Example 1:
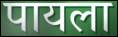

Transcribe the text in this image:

पायला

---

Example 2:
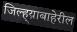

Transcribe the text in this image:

जिल्ह्य़ाबाहेरील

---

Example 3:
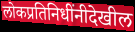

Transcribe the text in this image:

लोकप्रतिनिधींनीदेखील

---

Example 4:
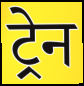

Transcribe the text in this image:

ट्रेन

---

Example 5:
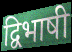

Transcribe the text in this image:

द्विभाषी